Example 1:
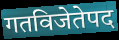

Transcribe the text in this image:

गतविजेतेपद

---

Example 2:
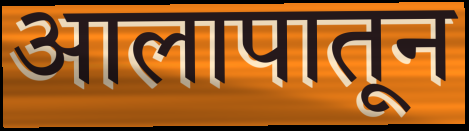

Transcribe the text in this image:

आलापातून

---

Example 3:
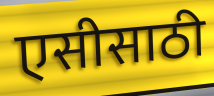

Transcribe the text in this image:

एसीसाठी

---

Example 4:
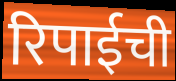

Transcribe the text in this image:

रिपाईची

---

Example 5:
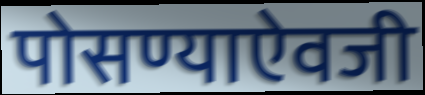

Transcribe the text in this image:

पोसण्याऐवजी